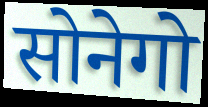
सोनेगो